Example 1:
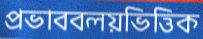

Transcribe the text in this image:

প্রভাববলয়ভিত্তিক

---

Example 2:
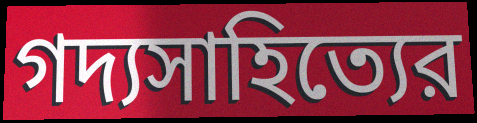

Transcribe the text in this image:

গদ্যসাহিত্যের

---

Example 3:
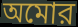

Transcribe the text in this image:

অমোর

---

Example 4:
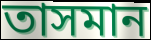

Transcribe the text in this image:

তাসমান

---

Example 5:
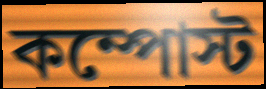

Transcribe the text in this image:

কম্পোস্ট